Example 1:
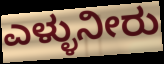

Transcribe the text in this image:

ಎಳ್ಳುನೀರು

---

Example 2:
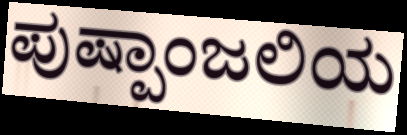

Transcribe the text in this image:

ಪುಷ್ಪಾಂಜಲಿಯ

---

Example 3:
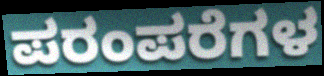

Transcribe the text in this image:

ಪರಂಪರೆಗಳ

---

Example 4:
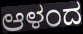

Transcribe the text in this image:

ಆಳಂದ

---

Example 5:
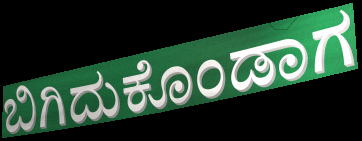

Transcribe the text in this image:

ಬಿಗಿದುಕೊಂಡಾಗ